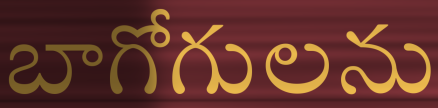
బాగోగులను